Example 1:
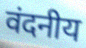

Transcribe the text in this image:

वंदनीय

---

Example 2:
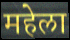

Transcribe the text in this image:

महेला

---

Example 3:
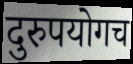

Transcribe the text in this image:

दुरुपयोगच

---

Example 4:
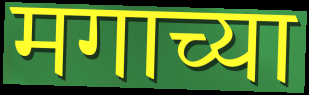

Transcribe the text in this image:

मगाच्या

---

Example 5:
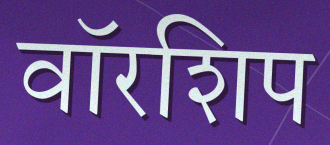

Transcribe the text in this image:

वॉरशिप